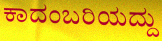
ಕಾದಂಬರಿಯದ್ದು